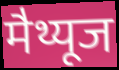
मैथ्‍यूज